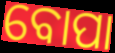
ବୋପା